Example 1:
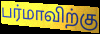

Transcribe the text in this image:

பர்மாவிற்கு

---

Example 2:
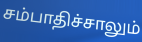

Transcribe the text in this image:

சம்பாதிச்சாலும்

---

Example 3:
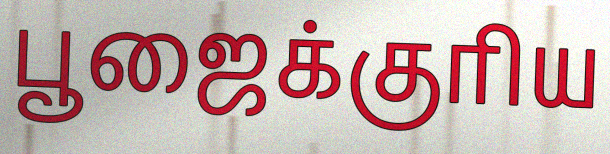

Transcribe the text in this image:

பூஜைக்குரிய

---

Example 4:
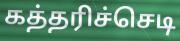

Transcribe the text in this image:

கத்தரிச்செடி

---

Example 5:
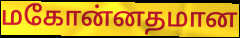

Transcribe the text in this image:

மகோன்னதமான